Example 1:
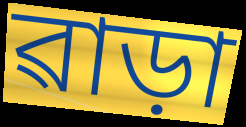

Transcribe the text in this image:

ৱাড়া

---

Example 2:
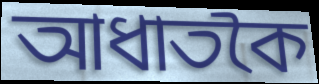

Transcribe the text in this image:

আধাতকৈ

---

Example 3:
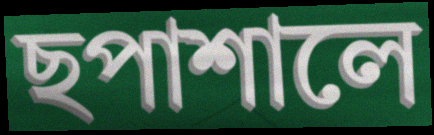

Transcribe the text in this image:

ছপাশালে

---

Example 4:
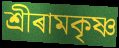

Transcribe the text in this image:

শ্ৰীৰামকৃষ্ণ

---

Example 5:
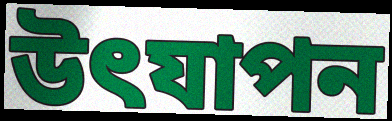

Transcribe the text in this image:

উৎযাপন